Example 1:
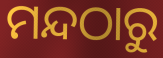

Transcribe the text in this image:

ମନ୍ଦଠାରୁ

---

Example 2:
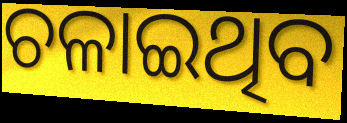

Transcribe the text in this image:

ଚଳାଇଥିବ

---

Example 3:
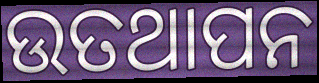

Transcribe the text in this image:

ଉତଥାପନ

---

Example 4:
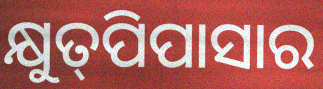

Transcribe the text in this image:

କ୍ଷୁତ୍‍ପିପାସାର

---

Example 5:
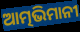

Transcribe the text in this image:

ଆତ୍ମଭିମାନୀ